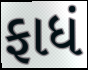
ફાધં